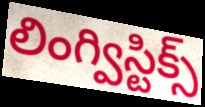
లింగ్విస్టిక్స్